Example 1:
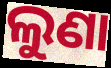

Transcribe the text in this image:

ଲୁଣା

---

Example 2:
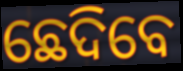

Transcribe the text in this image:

ଛେଦିବେ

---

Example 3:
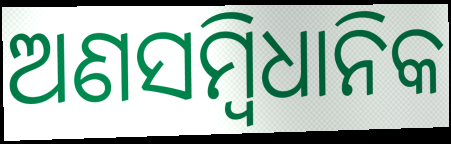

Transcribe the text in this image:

ଅଣସମ୍ବିଧାନିକ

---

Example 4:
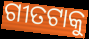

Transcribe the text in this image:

ଗୀତଟାକୁ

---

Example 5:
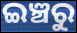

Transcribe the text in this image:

ଇଞ୍ଚରୁ